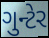
ગુન્ટેર